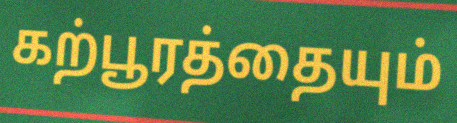
கற்பூரத்தையும்